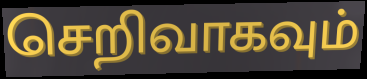
செறிவாகவும்